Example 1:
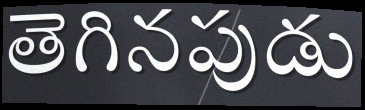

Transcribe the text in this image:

తెగినపుడు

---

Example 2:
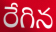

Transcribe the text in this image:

రేగిన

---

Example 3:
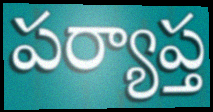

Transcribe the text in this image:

పర్యాప్త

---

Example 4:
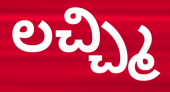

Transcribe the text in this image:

లచ్చ్మి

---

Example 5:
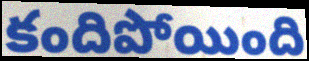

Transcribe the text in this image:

కందిపోయింది